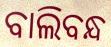
ବାଲିବନ୍ଧ